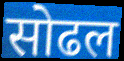
सोढल